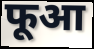
फूआ